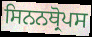
ਸਿਨਨਥ੍ਰੋਪਸ